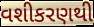
વશીકરણથી